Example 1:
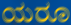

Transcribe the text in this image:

ಯರೂ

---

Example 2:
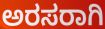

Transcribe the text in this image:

ಅರಸರಾಗಿ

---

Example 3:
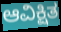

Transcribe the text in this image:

ಆವಿಕ್ಷಿತ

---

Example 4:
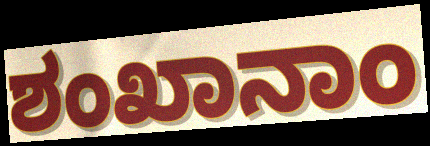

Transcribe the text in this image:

ಶಂಖಾನಾಂ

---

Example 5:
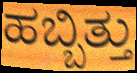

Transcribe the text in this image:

ಹಬ್ಬಿತ್ತು